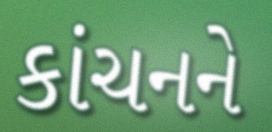
કાંચનને